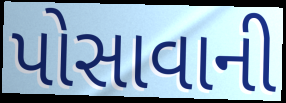
પોસાવાની